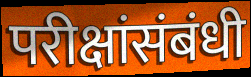
परीक्षांसंबंधी